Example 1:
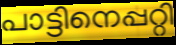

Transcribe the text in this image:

പാട്ടിനെപ്പറ്റി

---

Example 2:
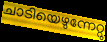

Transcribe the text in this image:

ചാടിയെഴുന്നേറ്റു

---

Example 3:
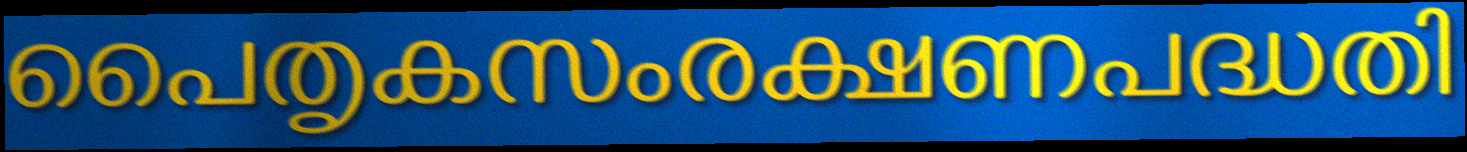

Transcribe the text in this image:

പൈതൃകസംരക്ഷണപദ്ധതി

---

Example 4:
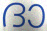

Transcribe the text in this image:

ദാ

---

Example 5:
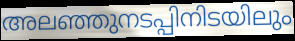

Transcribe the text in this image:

അലഞ്ഞുനടപ്പിനിടയിലും